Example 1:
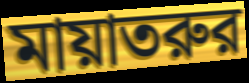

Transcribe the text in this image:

মায়াতরুর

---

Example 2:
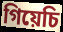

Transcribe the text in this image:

গিয়েচি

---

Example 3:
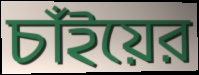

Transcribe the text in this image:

চাঁইয়ের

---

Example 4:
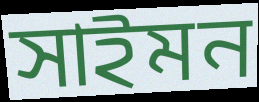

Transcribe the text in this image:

সাইমন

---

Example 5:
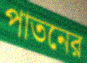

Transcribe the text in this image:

পাতনের